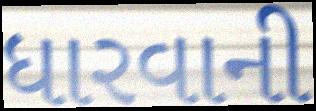
ધારવાની